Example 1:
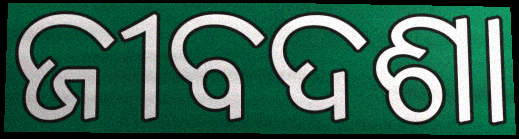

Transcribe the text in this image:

ଜୀବଦଶା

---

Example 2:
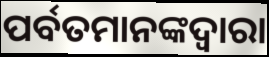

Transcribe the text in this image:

ପର୍ବତମାନଙ୍କଦ୍ଵାରା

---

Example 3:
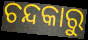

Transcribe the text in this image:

ଚନ୍ଦକାରୁ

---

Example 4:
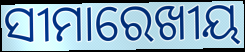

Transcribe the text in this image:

ସୀମାରେଖୀୟ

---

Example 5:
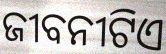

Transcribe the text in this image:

ଜୀବନୀଟିଏ